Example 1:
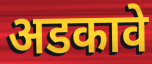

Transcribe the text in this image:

अडकावे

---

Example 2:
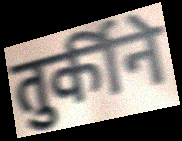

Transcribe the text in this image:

तुर्कीने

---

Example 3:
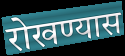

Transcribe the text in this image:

रोखण्यास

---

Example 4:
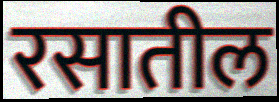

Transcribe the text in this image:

रसातील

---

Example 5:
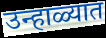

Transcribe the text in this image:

उन्हाळ्यात